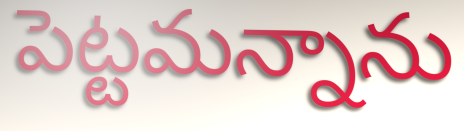
పెట్టమన్నాను